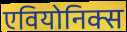
एवियोनिक्स